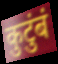
कुटुंबं